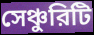
সেঞ্চুরিটি